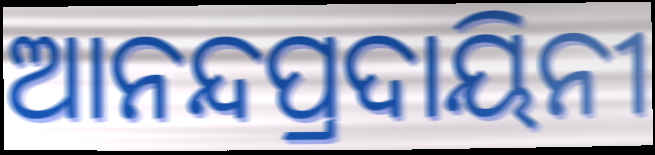
ଆନନ୍ଦପ୍ରଦାୟିନୀ